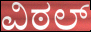
ವಿಠಲ್